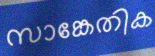
സാങ്കേതിക